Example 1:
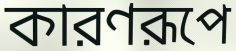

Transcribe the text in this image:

কারণরূপে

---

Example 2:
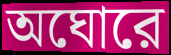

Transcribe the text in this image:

অঘোরে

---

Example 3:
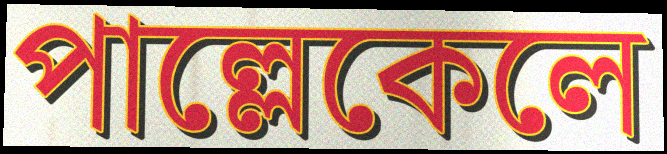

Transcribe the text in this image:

পাল্লেকেলে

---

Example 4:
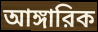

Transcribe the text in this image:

আঙ্গারিক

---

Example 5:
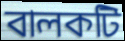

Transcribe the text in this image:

বালকটি